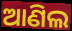
ଆଣିଲ